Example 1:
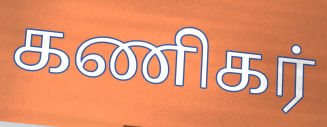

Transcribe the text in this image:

கணிகர்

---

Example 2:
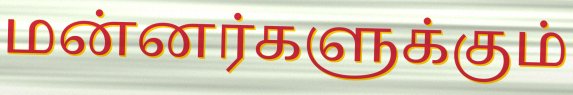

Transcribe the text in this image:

மன்னர்களுக்கும்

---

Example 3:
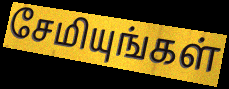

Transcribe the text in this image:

சேமியுங்கள்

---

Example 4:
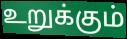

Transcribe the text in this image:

உறுக்கும்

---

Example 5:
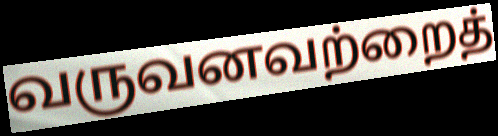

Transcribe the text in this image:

வருவனவற்றைத்